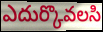
ఎదుర్కొవలసి